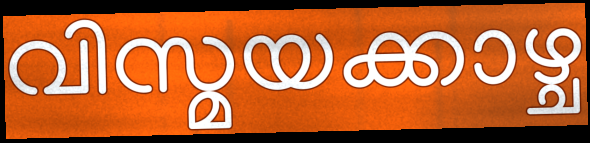
വിസ്മയക്കാഴ്ച